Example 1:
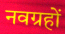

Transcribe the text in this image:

नवग्रहों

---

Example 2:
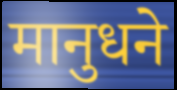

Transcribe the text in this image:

मानुधने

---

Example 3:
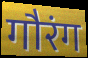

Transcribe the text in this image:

गौरंग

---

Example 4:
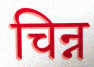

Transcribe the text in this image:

चिन्न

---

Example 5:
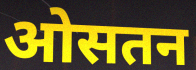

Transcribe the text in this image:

ओसतन